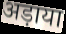
अड़ाया